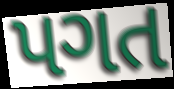
પગત